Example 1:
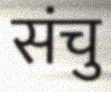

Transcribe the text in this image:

संचु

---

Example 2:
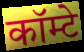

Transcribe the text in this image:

कॉम्टे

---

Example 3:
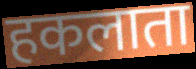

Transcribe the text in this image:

हकलाता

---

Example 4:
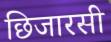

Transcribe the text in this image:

छिजारसी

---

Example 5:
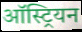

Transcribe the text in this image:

ऑस्ट्रियन